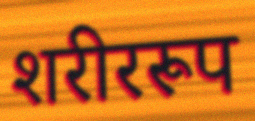
शरीररूप